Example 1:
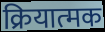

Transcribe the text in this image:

क्रियात्‍मक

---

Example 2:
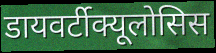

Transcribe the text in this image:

डायवर्टीक्यूलोसिस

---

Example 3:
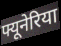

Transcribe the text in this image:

फ्यूनेरिया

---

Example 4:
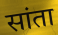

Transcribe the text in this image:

सांता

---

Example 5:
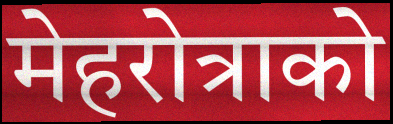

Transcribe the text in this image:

मेहरोत्राको